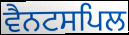
ਵੈਨਟਸਪਿਲ